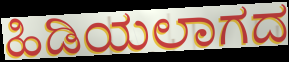
ಹಿಡಿಯಲಾಗದ